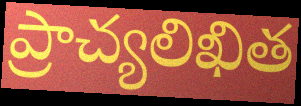
ప్రాచ్యలిఖిత